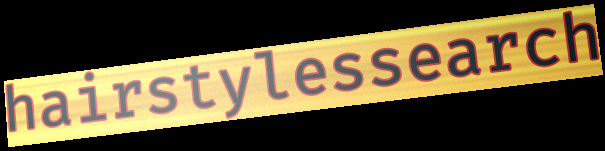
hairstylessearch